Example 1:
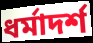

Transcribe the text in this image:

ধর্মাদর্শ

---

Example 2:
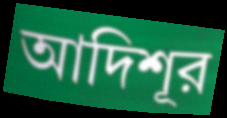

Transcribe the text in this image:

আদিশূর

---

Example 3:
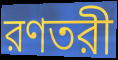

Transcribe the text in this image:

রণতরী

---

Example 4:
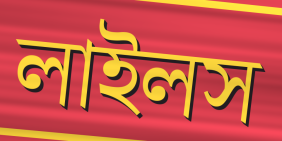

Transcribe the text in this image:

লাইলস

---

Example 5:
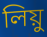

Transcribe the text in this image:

লিয়ু